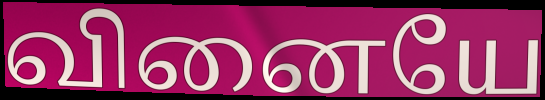
வினையே